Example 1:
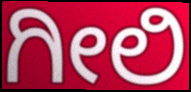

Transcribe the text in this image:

ಗೀಲಿ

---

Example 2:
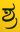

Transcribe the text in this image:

ಶ್ರ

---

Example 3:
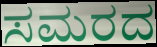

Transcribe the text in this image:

ಸಮರದ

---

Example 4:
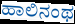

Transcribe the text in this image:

ಹಾಲಿನಂಥ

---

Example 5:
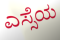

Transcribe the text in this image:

ಎಸ್ಸೆಯ